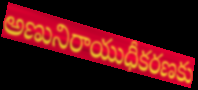
అణునిరాయుధీకరణకు